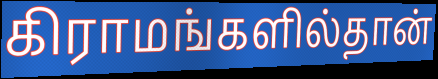
கிராமங்களில்தான்